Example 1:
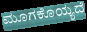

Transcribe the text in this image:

ಮೂಗಕೊಯ್ಯದೆ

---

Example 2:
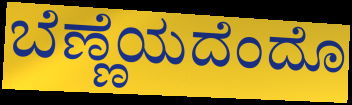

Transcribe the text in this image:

ಬೆಣ್ಣೆಯದೆಂದೊ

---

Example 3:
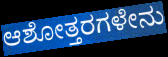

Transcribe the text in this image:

ಆಶೋತ್ತರಗಳೇನು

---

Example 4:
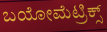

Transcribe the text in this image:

ಬಯೋಮೆಟ್ರಿಕ್ಸ್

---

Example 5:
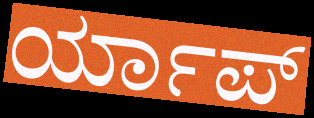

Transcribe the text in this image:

ರ್ಯಾಪ್